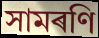
সামৰণি